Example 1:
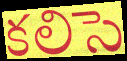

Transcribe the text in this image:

కలిసె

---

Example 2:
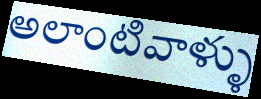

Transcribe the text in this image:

అలాంటివాళ్ళు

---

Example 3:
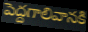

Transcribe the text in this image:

పెద్దగాలివానకి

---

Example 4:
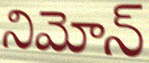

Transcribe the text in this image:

నిమోన్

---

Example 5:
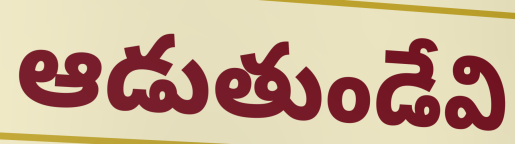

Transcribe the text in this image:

ఆడుతుండేవి